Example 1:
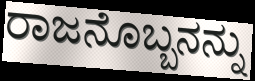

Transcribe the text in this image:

ರಾಜನೊಬ್ಬನನ್ನು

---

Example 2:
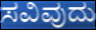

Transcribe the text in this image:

ಸವಿವುದು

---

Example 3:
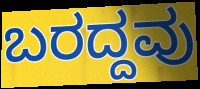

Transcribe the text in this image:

ಬರದ್ದವು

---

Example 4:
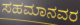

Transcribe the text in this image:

ಸಹಮಾನವರ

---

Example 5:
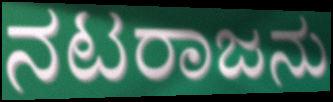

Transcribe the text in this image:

ನಟರಾಜನು